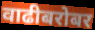
वाढीबरोबर